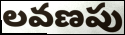
లవణపు